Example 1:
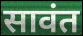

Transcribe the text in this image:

सावंत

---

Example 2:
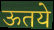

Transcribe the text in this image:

ऊतये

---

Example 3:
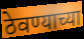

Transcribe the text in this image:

ठेवण्याच्या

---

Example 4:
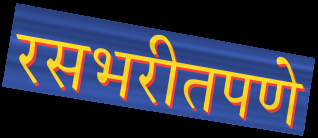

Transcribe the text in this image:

रसभरीतपणे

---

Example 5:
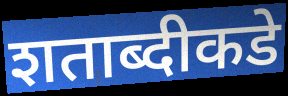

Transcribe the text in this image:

शताब्दीकडे